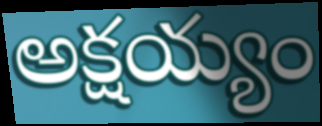
అక్షయ్యం